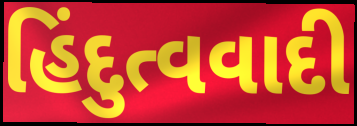
હિંદુત્વવાદી